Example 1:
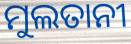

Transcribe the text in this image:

ମୁଲତାନୀ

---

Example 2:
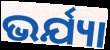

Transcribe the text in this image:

ଭର୍ଯ୍ୟା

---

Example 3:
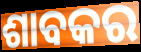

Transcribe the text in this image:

ଶାବକର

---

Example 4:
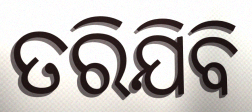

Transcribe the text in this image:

ତରିଯିବି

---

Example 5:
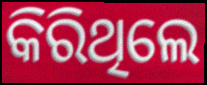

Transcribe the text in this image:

କିରିଥିଲେ